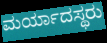
ಮರ್ಯಾದಸ್ಥರು